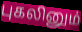
புகலினும்